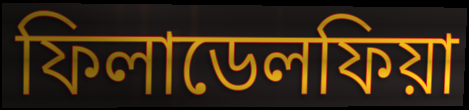
ফিলাডেলফিয়া